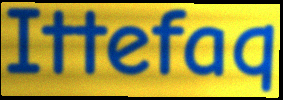
Ittefaq